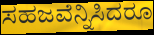
ಸಹಜವೆನ್ನಿಸಿದರೂ